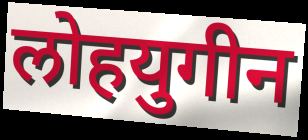
लोहयुगीन